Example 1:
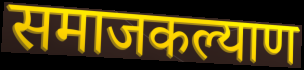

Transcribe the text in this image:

समाजकल्याण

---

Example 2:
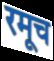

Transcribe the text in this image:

रमूच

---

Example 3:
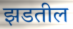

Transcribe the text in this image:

झडतील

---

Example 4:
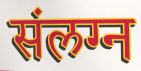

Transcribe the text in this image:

संलग्‍न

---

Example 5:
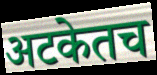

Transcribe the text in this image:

अटकेतच